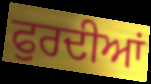
ਫੁਰਦੀਆਂ